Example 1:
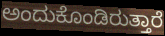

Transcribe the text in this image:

ಅಂದುಕೊಂಡಿರುತ್ತಾರೆ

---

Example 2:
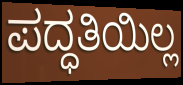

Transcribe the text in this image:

ಪದ್ಧತಿಯಿಲ್ಲ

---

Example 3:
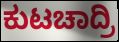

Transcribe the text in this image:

ಕುಟಚಾದ್ರಿ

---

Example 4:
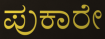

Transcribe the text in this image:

ಪುಕಾರೇ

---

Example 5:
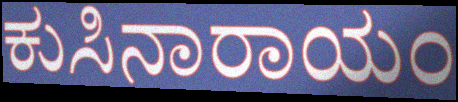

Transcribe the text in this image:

ಕುಸಿನಾರಾಯಂ